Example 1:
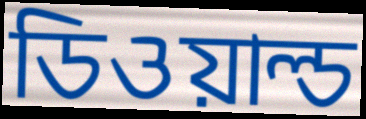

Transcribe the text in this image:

ডিওয়াল্ড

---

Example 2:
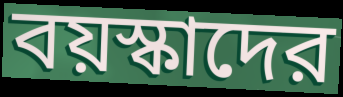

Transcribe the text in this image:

বয়স্কাদের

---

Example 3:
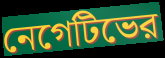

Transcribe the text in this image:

নেগেটিভের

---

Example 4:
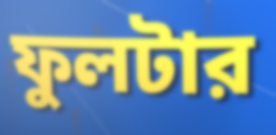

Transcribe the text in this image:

ফুলটার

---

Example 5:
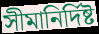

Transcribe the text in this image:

সীমানির্দিষ্ট